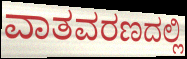
ವಾತವರಣದಲ್ಲಿ